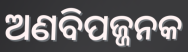
ଅଣବିପଜ୍ଜନକ